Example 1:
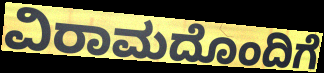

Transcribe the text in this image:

ವಿರಾಮದೊಂದಿಗೆ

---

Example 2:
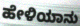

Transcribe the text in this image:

ಹೇಳಿಯಾನು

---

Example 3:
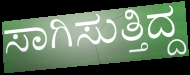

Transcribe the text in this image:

ಸಾಗಿಸುತ್ತಿದ್ದ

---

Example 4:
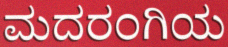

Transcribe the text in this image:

ಮದರಂಗಿಯ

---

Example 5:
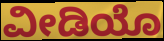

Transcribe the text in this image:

ವೀಡಿಯೊ